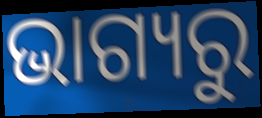
ଭାଗ୍ୟରୁ